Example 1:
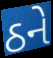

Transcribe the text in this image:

ઠને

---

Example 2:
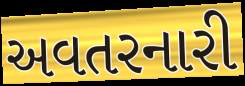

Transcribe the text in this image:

અવતરનારી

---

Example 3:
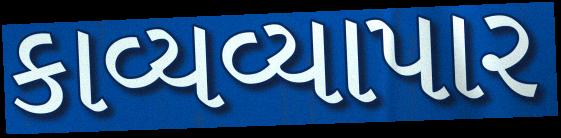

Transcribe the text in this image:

કાવ્યવ્યાપાર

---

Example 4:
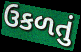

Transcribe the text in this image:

ઉકળતું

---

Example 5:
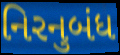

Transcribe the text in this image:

નિરનુબંધ